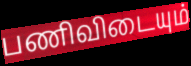
பணிவிடையும்